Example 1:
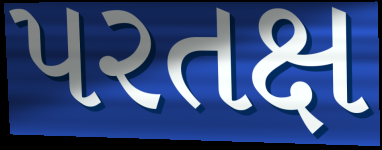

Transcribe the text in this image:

પરતક્ષ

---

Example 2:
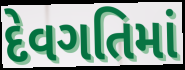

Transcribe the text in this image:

દેવગતિમાં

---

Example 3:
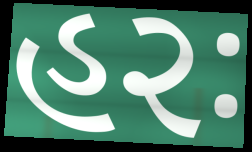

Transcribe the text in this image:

હરઃ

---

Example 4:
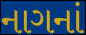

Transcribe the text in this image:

નાગનાં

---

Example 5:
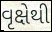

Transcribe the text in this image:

વૃક્ષેથી